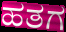
ಹತಗ